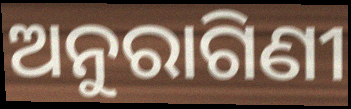
ଅନୁରାଗିଣୀ